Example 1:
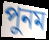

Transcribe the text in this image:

পুনম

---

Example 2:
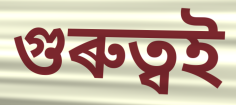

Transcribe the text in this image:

গুৰুত্বই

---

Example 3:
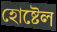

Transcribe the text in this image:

হোষ্টেল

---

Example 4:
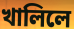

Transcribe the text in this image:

খালিলে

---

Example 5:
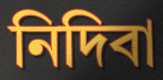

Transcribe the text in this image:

নিদিবা